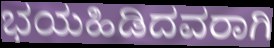
ಭಯಹಿಡಿದವರಾಗಿ